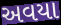
અવયા